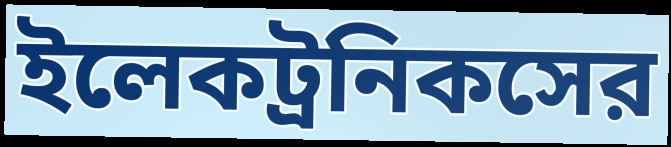
ইলেকট্রনিকসের